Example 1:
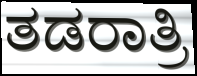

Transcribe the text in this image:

ತಡರಾತ್ರಿ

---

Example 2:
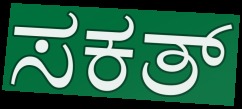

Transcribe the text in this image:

ಸಕತ್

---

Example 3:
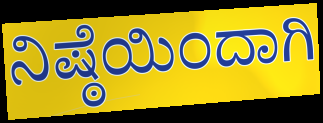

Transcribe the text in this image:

ನಿಷ್ಠೆಯಿಂದಾಗಿ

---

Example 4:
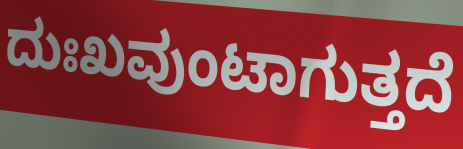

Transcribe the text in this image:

ದುಃಖವುಂಟಾಗುತ್ತದೆ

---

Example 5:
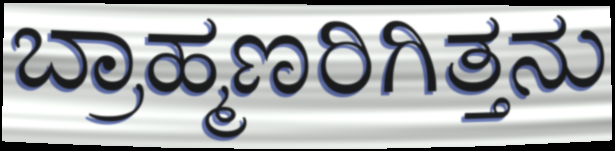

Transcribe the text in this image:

ಬ್ರಾಹ್ಮಣರಿಗಿತ್ತನು